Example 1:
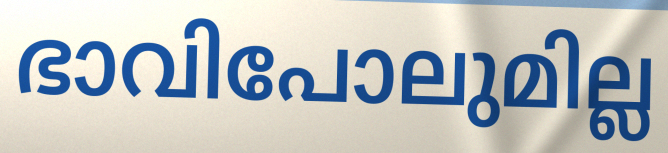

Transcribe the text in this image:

ഭാവിപോലുമില്ല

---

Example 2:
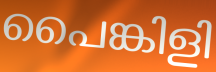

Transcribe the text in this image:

പൈങ്കിളി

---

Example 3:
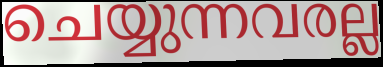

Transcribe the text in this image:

ചെയ്യുന്നവരല്ല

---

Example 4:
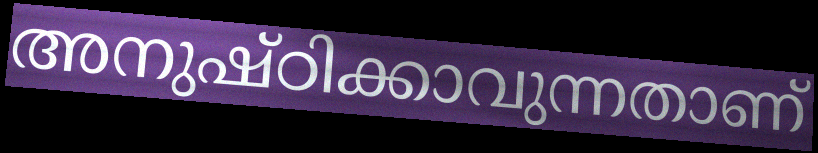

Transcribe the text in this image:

അനുഷ്ഠിക്കാവുന്നതാണ്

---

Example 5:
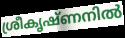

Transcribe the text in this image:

ശ്രീകൃഷ്ണനിൽ